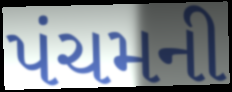
પંચમની